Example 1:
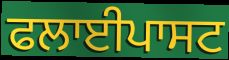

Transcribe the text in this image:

ਫਲਾਈਪਾਸਟ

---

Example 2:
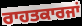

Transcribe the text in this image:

ਰਾਹਤਕਾਰਜਾਂ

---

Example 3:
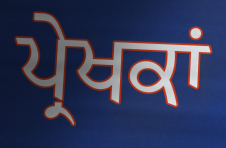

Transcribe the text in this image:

ਪ੍ਰੇਖਕਾਂ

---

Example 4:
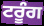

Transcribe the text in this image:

ਟਰੂੰਗ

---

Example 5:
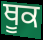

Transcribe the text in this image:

ਥੂਕ